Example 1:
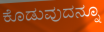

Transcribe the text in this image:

ಕೊಡುವುದನ್ನೂ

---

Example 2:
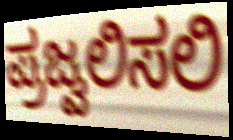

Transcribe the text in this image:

ಪ್ರಜ್ವಲಿಸಲಿ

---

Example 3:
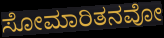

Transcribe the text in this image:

ಸೋಮಾರಿತನವೋ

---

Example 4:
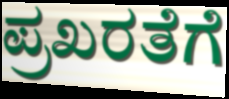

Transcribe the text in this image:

ಪ್ರಖರತೆಗೆ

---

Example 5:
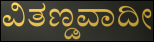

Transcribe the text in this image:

ವಿತಣ್ಡವಾದೀ